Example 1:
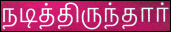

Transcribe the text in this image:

நடித்திருந்தார்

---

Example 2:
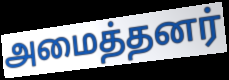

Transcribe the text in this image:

அமைத்தனர்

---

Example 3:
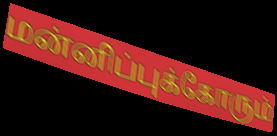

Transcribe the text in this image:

மன்னிப்புக்கோரும்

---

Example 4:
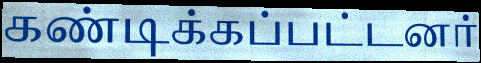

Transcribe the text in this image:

கண்டிக்கப்பட்டனர்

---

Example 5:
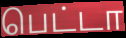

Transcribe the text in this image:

பெட்டா